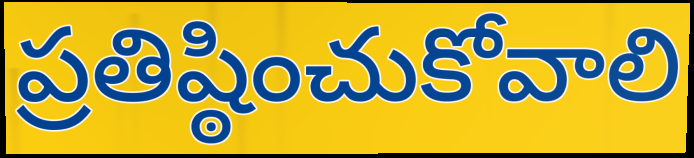
ప్రతిష్ఠించుకోవాలి